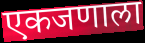
एकजणाला